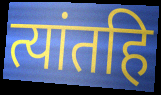
त्यांतहि